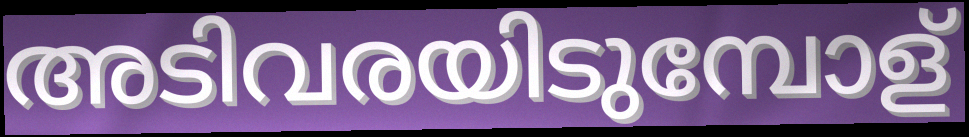
അടിവരയിടുമ്പോള്